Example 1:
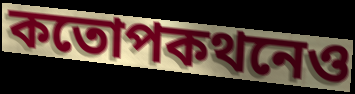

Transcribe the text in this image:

কতোপকথনেও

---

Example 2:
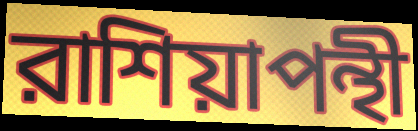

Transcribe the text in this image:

রাশিয়াপন্থী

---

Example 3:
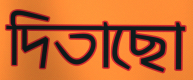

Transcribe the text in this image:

দিতাছো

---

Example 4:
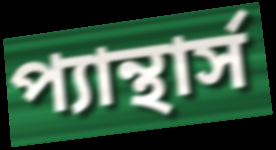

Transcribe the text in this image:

প্যান্থার্স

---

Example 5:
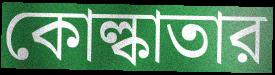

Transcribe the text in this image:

কোল্কাতার